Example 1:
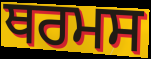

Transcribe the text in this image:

ਥਰਮਸ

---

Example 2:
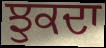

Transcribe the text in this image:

ਝੁਕਦਾ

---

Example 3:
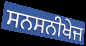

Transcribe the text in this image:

ਸਨਸਨੀਖੇਜ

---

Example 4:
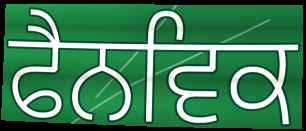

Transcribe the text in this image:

ਫੈਨਵਿਕ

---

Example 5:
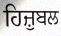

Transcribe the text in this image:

ਹਿਜ਼ੁਬਲ